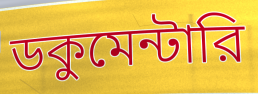
ডকুমেন্টারি